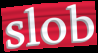
slob